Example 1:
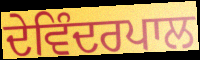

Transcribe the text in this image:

ਦੇਵਿੰਦਰਪਾਲ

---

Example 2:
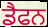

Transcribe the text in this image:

ਡੈਫਨ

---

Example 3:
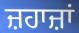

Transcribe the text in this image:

ਜ਼ਹਾਜ਼ਾਂ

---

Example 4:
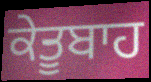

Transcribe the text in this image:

ਕੇਤੂਬਾਹ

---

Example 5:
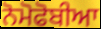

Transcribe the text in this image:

ਨੋਮੋਫੋਬੀਆ